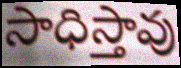
సాధిస్తావు